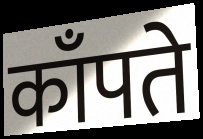
काँपते